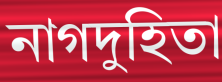
নাগদুহিতা